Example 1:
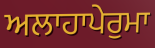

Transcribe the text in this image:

ਅਲਾਹਾਪੇਰੁਮਾ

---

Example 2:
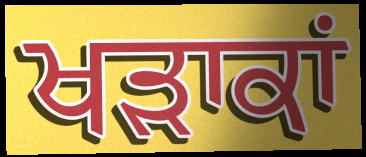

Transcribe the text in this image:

ਖੜਾਕਾਂ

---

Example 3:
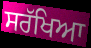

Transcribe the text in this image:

ਸਰੱਖਿਆ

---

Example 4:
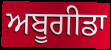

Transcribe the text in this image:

ਅਬੂਗੀਡਾ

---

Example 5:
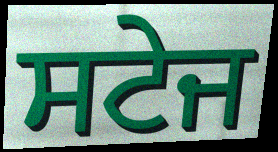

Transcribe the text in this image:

ਸਟੇਜ